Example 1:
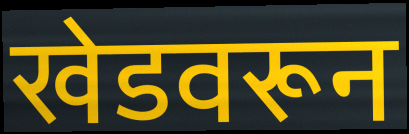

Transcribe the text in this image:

खेडवरून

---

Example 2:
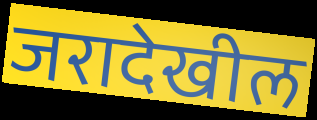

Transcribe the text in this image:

जरादेखील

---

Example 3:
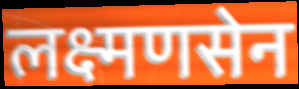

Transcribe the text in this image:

लक्ष्मणसेन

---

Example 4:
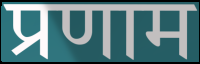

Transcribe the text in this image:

प्रणाम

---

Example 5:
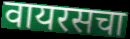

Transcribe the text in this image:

वायरसचा